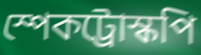
স্পেকট্রোস্কপি